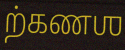
ற்கணஶ